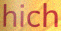
hich